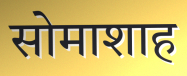
सोमाशाह